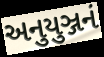
અનુયુઞ્જનં